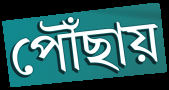
পৌঁছায়